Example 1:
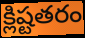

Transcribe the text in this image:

క్లిష్టతరం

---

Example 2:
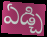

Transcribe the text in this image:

ఏడ్చి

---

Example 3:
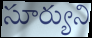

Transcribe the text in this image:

సూర్యుని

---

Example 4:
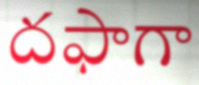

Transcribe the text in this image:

దఫాగా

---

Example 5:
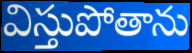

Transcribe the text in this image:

విస్తుపోతాను